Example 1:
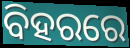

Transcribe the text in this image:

ବିହରରେ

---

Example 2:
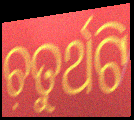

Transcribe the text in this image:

ଚ଼ତୁର୍ଥଟି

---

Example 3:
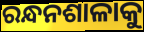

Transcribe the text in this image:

ରନ୍ଧନଶାଳାକୁ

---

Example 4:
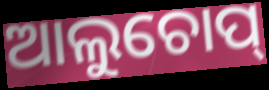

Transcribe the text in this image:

ଆଲୁଚୋପ୍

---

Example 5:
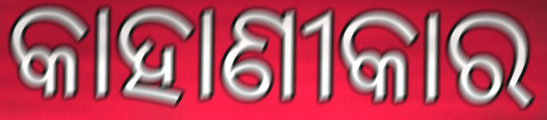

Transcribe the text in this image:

କାହାଣୀକାର